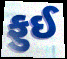
ફુઈ